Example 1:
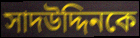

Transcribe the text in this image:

সাদউদ্দিনকে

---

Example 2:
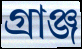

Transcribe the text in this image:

গ্রাঞ্জ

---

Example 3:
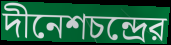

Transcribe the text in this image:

দীনেশচন্দ্রের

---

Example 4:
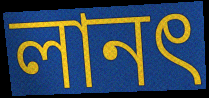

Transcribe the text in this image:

লানৎ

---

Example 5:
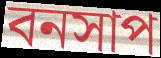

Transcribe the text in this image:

বনসাপ